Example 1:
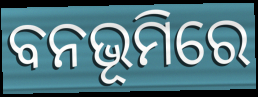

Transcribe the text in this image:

ବନଭୂମିରେ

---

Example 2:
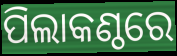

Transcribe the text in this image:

ପିଲାକଣ୍ଠରେ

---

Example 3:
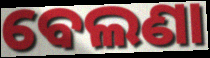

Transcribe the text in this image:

ବେଲଣା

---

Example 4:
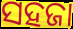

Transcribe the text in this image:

ସହଜା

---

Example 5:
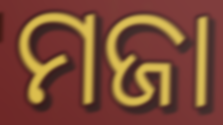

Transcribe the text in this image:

ମଜା